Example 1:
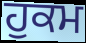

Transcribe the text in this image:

ਹੁਕਮ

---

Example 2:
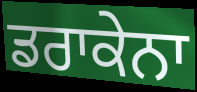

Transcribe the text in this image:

ਡਰਾਕੇਨਾ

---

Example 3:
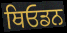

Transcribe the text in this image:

ਥਿਓਡਨ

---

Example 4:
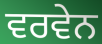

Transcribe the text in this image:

ਵਰਵੇਨ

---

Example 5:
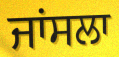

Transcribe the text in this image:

ਜਾਂਸਲਾ